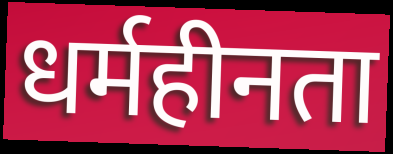
धर्महीनता